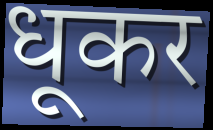
धूकर